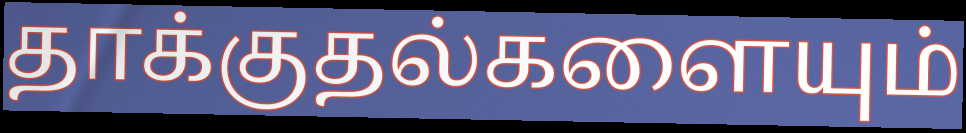
தாக்குதல்களையும்